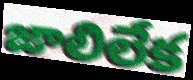
జాలిలేక